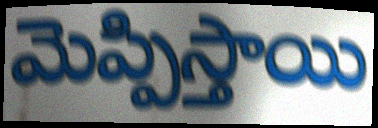
మెప్పిస్తాయి